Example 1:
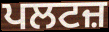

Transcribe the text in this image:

ਪਲਟਜ਼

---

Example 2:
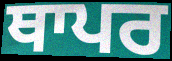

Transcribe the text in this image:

ਥਾਪਰ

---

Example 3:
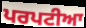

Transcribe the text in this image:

ਪਰਪਟੀਆ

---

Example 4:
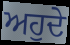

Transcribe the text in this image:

ਅਹੁਦੇ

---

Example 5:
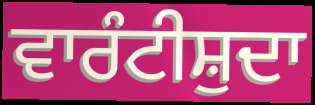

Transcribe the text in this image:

ਵਾਰੰਟੀਸ਼ੁਦਾ